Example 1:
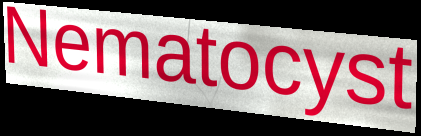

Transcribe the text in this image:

Nematocyst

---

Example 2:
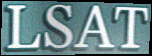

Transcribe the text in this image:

LSAT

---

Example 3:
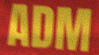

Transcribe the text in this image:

ADM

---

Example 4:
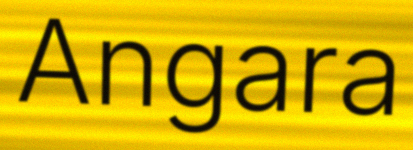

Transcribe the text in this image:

Angara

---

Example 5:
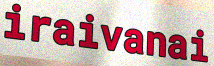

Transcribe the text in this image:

iraivanai